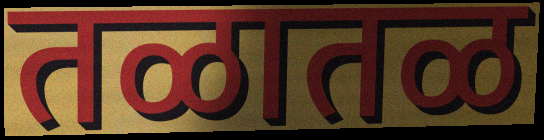
तळातळ